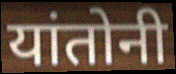
यांतोनी